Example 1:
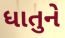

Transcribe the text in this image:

ધાતુને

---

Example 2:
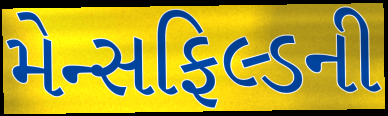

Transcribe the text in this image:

મેન્સફિલ્ડની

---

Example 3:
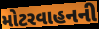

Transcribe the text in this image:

મોટરવાહનની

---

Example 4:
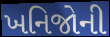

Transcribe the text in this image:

ખનિજોની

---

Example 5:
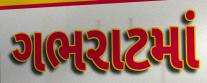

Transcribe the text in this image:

ગભરાટમાં